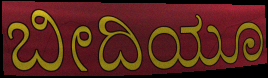
ಬೀದಿಯೂ